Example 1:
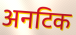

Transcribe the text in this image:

अनटिक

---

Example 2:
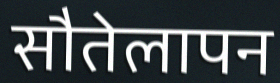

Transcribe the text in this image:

सौतेलापन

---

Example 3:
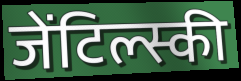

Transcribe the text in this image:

जेंटिल्स्की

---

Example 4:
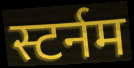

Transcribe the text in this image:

स्टर्नम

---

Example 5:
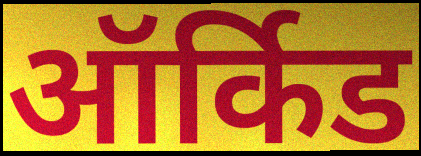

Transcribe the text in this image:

ऑर्किड